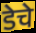
डेचे